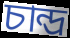
চান্দ্র